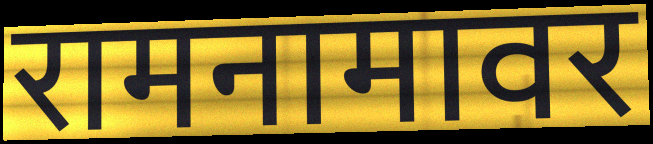
रामनामावर